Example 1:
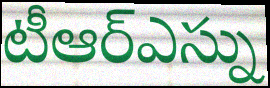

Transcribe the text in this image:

టీఆర్ఎస్ను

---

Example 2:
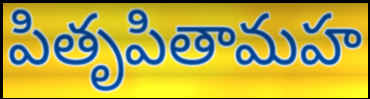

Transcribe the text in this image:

పితృపితామహ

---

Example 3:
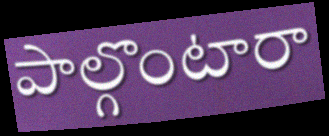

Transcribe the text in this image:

పాల్గొంటారా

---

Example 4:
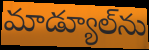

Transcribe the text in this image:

మాడ్యూల్‌ను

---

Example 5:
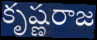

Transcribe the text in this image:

కృష్ణరాజ